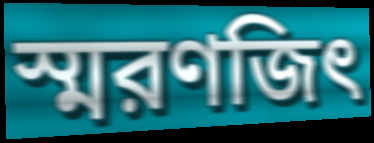
স্মরণজিৎ